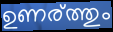
ഉണര്ത്തും